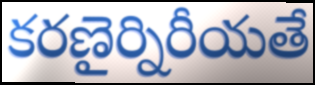
కరణైర్నిరీయతే